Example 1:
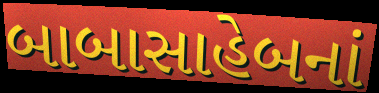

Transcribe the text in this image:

બાબાસાહેબનાં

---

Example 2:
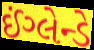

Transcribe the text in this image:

ઈંગ્લેન્ડે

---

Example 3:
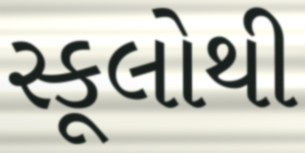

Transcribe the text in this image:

સ્કૂલોથી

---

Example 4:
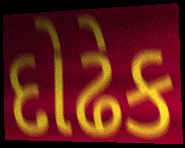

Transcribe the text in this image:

દોઢેક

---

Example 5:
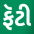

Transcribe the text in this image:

ફૅટી